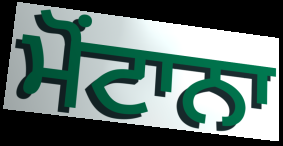
ਮੋਂਟਾਨਾ